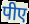
पीए